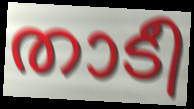
താടീ